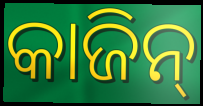
କାଜିନ୍